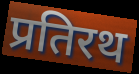
प्रतिरथ